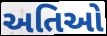
અતિઓ